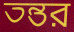
তন্তর